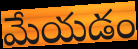
మేయడం